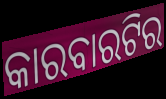
କାରବାରଟିର